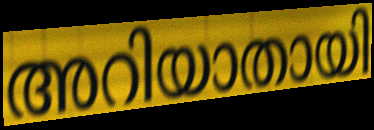
അറിയാതായി